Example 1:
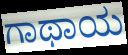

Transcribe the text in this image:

ಗಾಥಾಯ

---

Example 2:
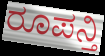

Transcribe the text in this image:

ರೂಪನ್ತಿ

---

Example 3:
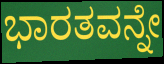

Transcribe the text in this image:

ಭಾರತವನ್ನೇ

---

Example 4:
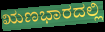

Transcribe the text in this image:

ಋಣಭಾರದಲ್ಲಿ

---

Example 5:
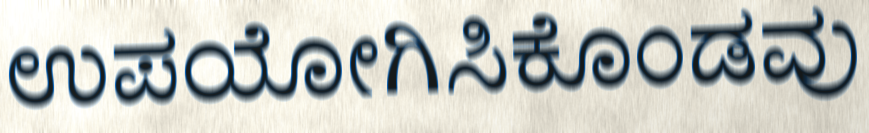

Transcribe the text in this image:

ಉಪಯೋಗಿಸಿಕೊಂಡವು